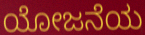
ಯೋಜನೆಯ